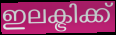
ഇലക്ട്രിക്ക്